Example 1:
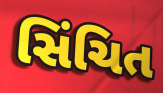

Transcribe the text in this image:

સિંચિત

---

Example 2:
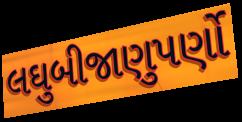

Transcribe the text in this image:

લઘુબીજાણુપર્ણો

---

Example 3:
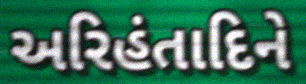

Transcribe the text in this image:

અરિહંતાદિને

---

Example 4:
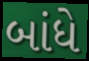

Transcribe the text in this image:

બાંધે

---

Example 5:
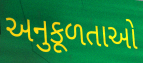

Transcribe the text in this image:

અનુકૂળતાઓ